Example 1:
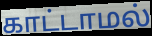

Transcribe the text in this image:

காட்டாமல்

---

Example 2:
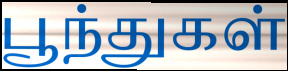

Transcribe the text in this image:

பூந்துகள்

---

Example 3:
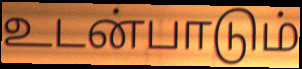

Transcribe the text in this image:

உடன்பாடும்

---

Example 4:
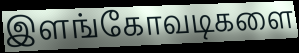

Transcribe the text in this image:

இளங்கோவடிகளை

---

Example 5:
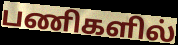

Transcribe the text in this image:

பணிகளில்